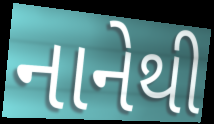
નાનેથી